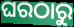
ଘରଠାରୁ